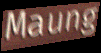
Maung